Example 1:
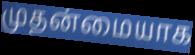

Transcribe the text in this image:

முதன்மையாக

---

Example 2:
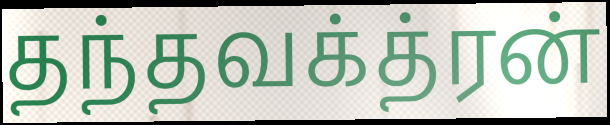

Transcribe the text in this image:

தந்தவக்த்ரன்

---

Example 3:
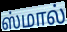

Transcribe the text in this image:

ஸ்மால்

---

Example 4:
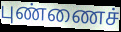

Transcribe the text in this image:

புண்ணைச்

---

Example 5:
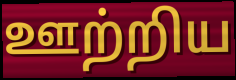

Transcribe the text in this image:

ஊற்றிய